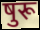
षुरू